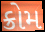
ક્રોમ